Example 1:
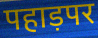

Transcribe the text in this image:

पहाड़पर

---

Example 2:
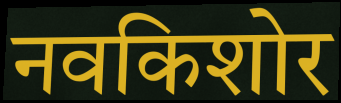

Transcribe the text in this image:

नवकिशोर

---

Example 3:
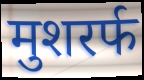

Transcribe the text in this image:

मुशरर्फ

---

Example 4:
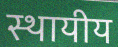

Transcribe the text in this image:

स्थायीय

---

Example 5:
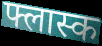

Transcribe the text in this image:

फ्लास्क